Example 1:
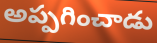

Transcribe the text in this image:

అప్పగించాడు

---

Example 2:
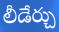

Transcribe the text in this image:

లీడేర్చు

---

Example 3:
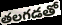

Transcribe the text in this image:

తలగడతో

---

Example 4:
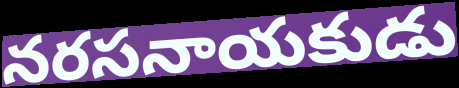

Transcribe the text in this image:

నరసనాయకుడు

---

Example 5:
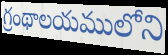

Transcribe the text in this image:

గ్రంథాలయములోని